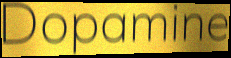
Dopamine